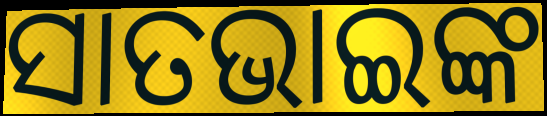
ସାତଭାଇଙ୍କ